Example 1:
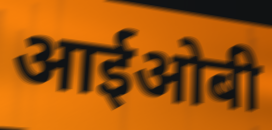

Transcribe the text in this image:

आईओबी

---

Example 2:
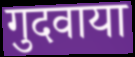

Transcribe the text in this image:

गुदवाया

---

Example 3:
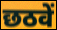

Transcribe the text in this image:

छठवें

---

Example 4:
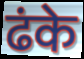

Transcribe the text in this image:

ढंके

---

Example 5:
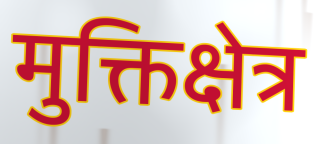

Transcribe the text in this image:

मुक्तिक्षेत्र